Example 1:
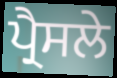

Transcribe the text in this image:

ਪ੍ਰੈਸਲੇ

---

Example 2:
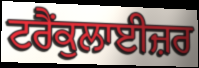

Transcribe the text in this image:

ਟਰੈਂਕੁਲਾਈਜ਼ਰ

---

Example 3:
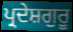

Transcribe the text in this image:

ਪ੍ਰਦੇਸ਼ਗੁਰੂ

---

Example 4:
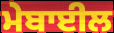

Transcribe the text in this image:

ਮੇਬਾਈਲ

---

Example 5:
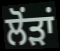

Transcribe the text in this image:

ਲੋਂੜਾਂ